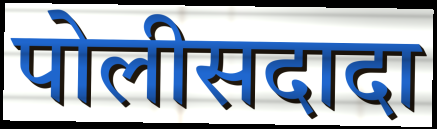
पोलीसदादा